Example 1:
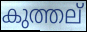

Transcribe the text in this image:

കുത്തല്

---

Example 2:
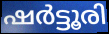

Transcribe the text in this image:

ഷർട്ടൂരി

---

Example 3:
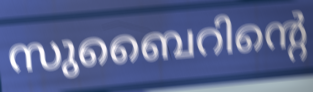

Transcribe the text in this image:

സുബൈറിന്റെ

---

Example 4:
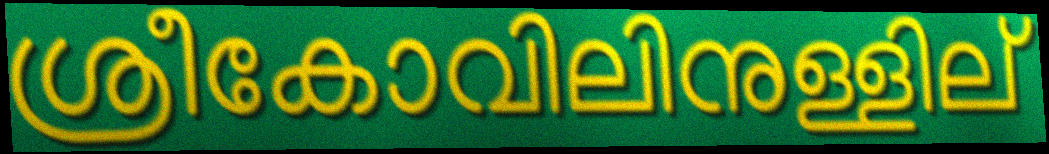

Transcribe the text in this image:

ശ്രീകോവിലിനുള്ളില്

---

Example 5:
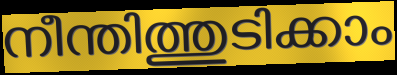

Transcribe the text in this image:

നീന്തിത്തുടിക്കാം